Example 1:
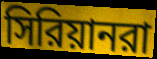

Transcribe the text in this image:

সিরিয়ানরা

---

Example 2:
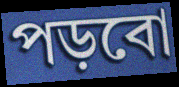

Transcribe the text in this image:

পড়বো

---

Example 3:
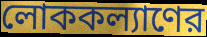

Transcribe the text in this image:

লোককল্যাণের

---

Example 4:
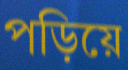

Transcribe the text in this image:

পড়িয়ে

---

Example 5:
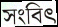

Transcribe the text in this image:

সংবিৎ